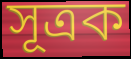
সূত্ৰক